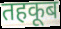
तहकूब